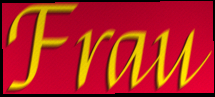
Frau